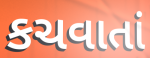
કચવાતાં